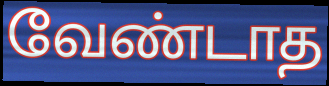
வேண்டாத